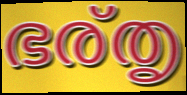
ഭര്തൃ